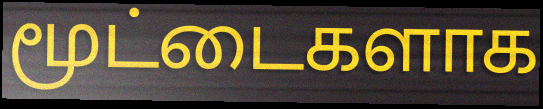
மூட்டைகளாக